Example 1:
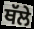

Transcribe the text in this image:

ਥੱਲੇ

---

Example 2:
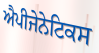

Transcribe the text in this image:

ਐਪੀਜੇਨੇਟਿਕਸ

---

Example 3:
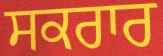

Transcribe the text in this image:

ਸਕਰਾਰ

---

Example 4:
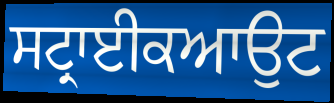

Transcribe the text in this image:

ਸਟ੍ਰਾਈਕਆਉਟ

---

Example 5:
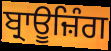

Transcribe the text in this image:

ਬ੍ਰਾਊਜ਼ਿੰਗ